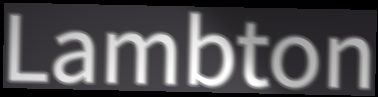
Lambton